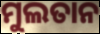
ମୁଲତାନ